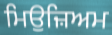
ਮਿਉਜ਼ਿਅਮ